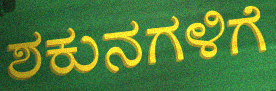
ಶಕುನಗಳಿಗೆ